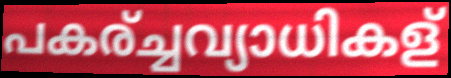
പകര്ച്ചവ്യാധികള്